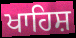
ਖਾਹਿਸ਼